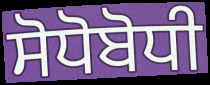
ਸੋਧੋਬੋਧੀ